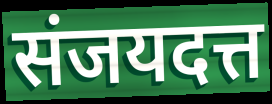
संजयदत्त